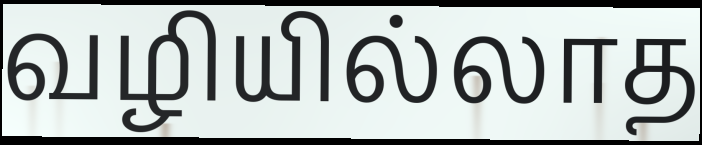
வழியில்லாத